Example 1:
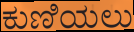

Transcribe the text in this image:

ಕುಣಿಯಲು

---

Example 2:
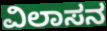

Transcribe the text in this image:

ವಿಲಾಸನ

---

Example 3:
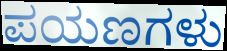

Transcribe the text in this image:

ಪಯಣಗಳು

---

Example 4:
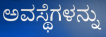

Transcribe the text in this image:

ಅವಸ್ಥೆಗಳನ್ನು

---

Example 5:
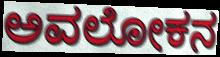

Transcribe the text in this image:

ಅವಲೋಕನ